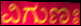
ವಿಗುಣಃ